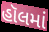
હૉલમાં